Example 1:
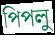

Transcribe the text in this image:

পিপলু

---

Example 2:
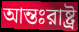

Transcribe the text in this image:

আন্তঃরাষ্ট্র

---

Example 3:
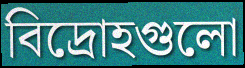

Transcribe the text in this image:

বিদ্রোহগুলো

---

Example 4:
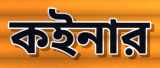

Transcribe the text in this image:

কইনার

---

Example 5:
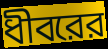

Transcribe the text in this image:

ধীবরের